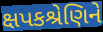
ક્ષપકશ્રેણિને